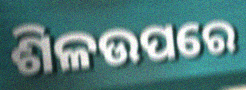
ଶିଳଉପରେ